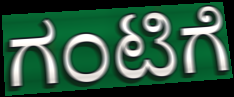
ಗಂಟಿಗೆ